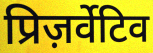
प्रिज़र्वेटिव